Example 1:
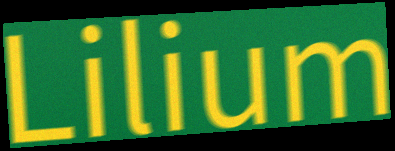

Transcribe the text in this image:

Lilium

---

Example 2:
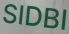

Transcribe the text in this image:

SIDBI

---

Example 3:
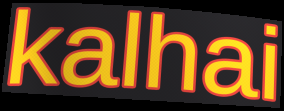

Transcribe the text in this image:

kalhai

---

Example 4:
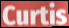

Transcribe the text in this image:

Curtis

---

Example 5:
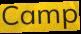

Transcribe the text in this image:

Camp